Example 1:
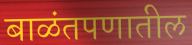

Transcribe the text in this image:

बाळंतपणातील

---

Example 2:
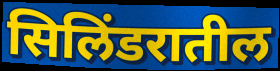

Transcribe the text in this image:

सिलिंडरातील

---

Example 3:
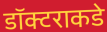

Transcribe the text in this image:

डॉक्टराकडे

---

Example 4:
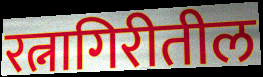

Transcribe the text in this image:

रत्नागिरीतील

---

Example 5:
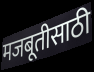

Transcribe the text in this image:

मजबूतीसाठी